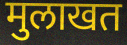
मुलाखत